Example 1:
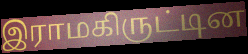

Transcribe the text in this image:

இராமகிருட்டின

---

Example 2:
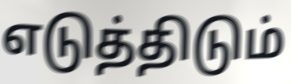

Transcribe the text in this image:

எடுத்திடும்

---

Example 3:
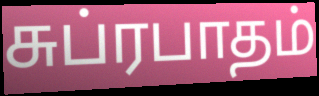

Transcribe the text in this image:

சுப்ரபாதம்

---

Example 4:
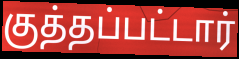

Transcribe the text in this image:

குத்தப்பட்டார்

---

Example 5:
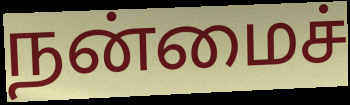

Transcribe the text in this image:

நன்மைச்